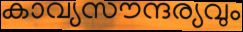
കാവ്യസൗന്ദര്യവും